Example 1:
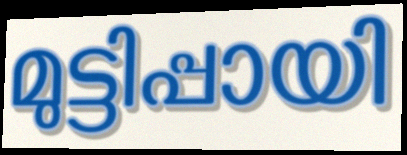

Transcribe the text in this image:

മുട്ടിപ്പായി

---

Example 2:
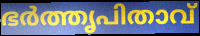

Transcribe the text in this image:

ഭർത്തൃപിതാവ്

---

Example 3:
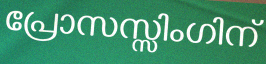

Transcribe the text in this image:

പ്രോസസ്സിംഗിന്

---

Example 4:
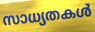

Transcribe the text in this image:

സാധ്യതകൾ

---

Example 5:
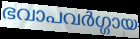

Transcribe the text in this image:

ഭവാപവർഗ്ഗായ